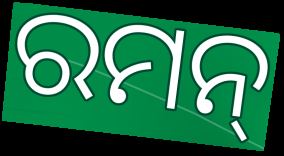
ରମନ୍